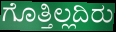
ಗೊತ್ತಿಲ್ಲದಿರು